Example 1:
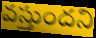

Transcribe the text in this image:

వస్తుందని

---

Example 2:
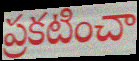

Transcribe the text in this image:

ప్రకటించా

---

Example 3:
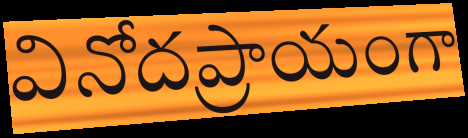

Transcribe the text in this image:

వినోదప్రాయంగా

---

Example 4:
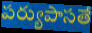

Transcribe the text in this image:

పర్యుపాసతే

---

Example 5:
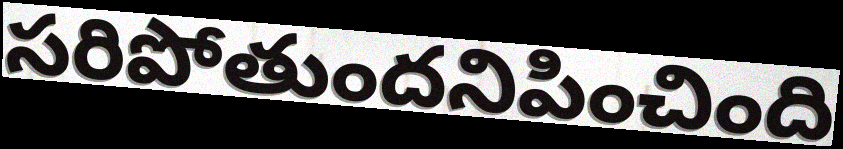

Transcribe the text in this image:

సరిపోతుందనిపించింది